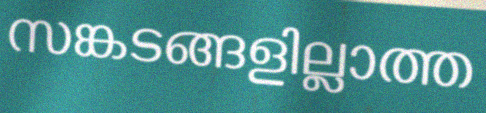
സങ്കടങ്ങളില്ലാത്ത